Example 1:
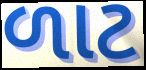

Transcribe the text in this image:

ળાટ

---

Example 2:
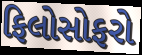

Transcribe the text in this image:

ફિલોસોફરો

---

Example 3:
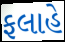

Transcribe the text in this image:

ફલાહે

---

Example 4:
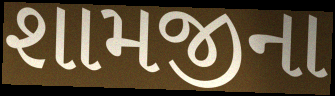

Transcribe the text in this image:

શામજીના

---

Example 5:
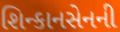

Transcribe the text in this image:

શિન્કાનસેનની